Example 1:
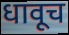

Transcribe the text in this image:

धावूच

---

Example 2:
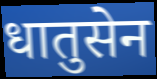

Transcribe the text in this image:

धातुसेन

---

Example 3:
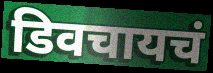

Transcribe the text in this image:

डिवचायचं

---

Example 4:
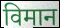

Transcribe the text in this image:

विमान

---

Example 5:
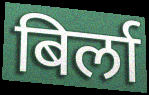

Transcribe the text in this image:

बिर्ला